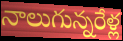
నాలుగున్నరేళ్ల